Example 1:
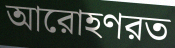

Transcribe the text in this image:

আরোহণরত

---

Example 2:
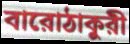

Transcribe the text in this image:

বারোঠাকুরী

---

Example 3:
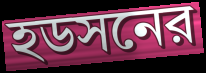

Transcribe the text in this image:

হডসনের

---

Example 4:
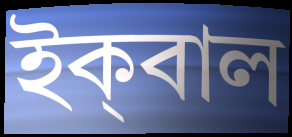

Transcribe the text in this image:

ইক্‌বাল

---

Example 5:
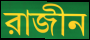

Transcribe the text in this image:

রাজীন